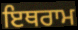
ਇਥਰਾਮ